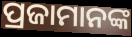
ପ୍ରଜାମାନଙ୍କ